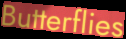
Butterflies